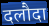
दलौदा